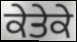
ਕੇਤੇਕੇ